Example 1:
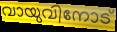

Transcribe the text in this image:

വായുവിനോട്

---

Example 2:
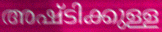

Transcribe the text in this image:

അഷ്ടിക്കുള്ള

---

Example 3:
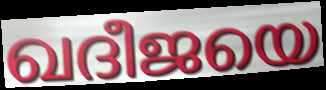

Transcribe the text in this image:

ഖദീജയെ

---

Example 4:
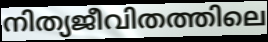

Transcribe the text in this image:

നിത്യജീവിതത്തിലെ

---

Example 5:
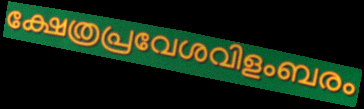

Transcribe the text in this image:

ക്ഷേത്രപ്രവേശവിളംബരം